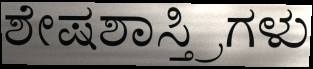
ಶೇಷಶಾಸ್ತ್ರಿಗಳು